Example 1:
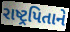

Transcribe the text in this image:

રાષ્ટ્રપિતાને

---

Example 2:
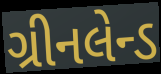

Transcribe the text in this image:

ગ્રીનલેન્ડ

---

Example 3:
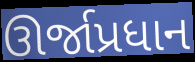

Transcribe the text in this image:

ઊર્જાપ્રધાન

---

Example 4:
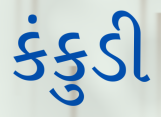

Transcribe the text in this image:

કંકુડી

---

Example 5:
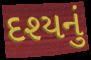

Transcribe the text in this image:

દશ્યનું